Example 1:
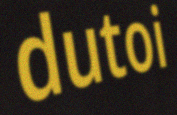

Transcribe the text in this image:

dutoi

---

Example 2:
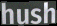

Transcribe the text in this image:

hush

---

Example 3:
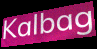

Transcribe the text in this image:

Kalbag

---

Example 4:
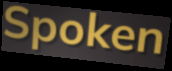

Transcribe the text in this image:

Spoken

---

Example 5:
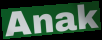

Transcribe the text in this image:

Anak